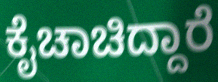
ಕೈಚಾಚಿದ್ದಾರೆ